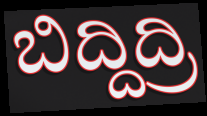
ಬಿದ್ದಿದ್ರಿ